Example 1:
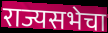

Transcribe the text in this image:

राज्यसभेचा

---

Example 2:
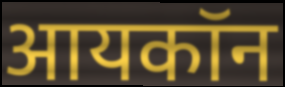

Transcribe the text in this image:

आयकॉन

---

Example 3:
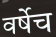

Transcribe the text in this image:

वर्षेच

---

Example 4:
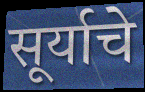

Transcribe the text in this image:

सूर्याचे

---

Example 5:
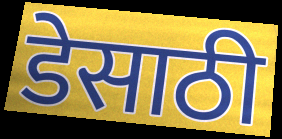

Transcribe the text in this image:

डेसाठी